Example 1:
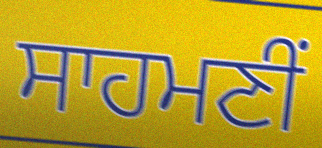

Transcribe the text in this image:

ਸਾਹਮਣੀਂ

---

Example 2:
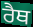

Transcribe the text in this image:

ਰੈਥ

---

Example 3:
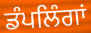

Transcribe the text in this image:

ਡੰਪਲਿੰਗਾਂ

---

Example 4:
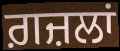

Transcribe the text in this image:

ਗ਼ਜ਼ਲਾਂ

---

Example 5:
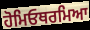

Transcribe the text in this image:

ਹੋਮਿਓਥਰਮਿਆ